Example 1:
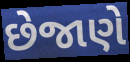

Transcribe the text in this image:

છેજાણે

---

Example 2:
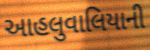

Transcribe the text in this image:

આહલુવાલિયાની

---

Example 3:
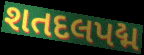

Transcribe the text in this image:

શતદલપદ્મ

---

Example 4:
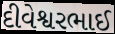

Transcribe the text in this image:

દીવેશ્વરભાઈ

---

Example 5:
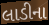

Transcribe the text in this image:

લાડીના